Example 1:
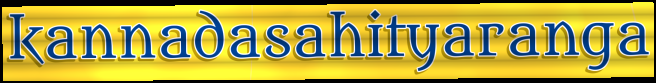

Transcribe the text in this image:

kannadasahityaranga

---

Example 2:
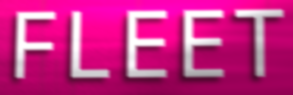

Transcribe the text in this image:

FLEET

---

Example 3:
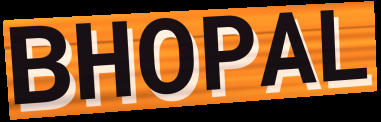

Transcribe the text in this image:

BHOPAL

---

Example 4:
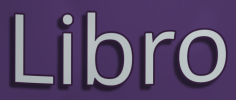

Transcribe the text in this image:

Libro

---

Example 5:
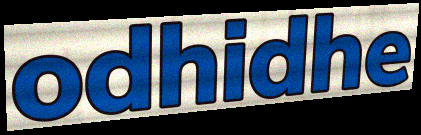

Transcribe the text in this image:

odhidhe